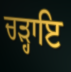
ਚੜ੍ਹਾਇ